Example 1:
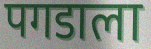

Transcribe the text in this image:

पगडाला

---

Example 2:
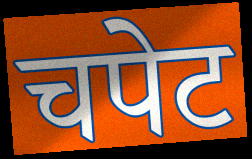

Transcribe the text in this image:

चपेट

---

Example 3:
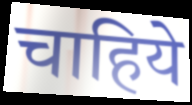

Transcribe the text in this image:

चाहिये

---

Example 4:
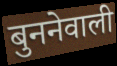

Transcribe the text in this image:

बुननेवाली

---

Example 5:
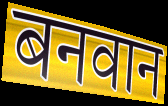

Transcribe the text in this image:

बनवान